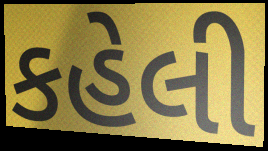
કહેલી